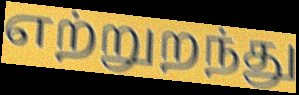
எற்றுறந்து